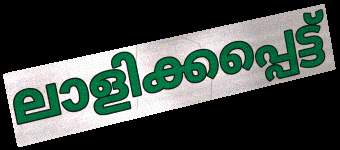
ലാളിക്കപ്പെട്ട്